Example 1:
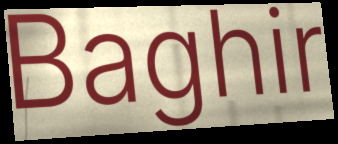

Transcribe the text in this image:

Baghir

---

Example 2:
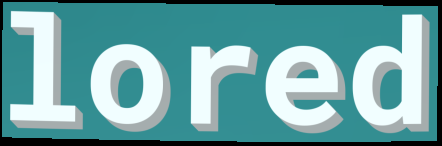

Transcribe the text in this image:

lored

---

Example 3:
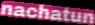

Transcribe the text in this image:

nachatun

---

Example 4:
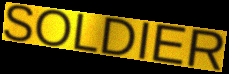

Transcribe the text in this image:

SOLDIER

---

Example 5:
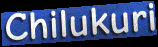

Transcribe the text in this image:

Chilukuri